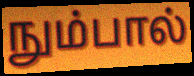
நும்பால்